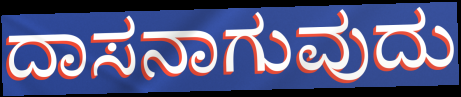
ದಾಸನಾಗುವುದು